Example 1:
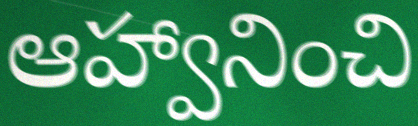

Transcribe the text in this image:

ఆహ్వానించి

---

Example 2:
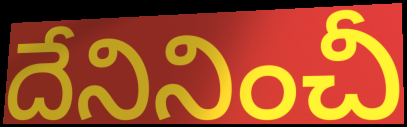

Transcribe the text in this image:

దేనినించీ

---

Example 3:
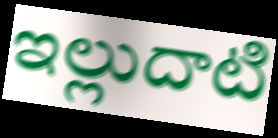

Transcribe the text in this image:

ఇల్లుదాటి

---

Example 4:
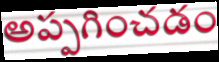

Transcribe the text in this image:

అప్పగించడం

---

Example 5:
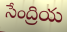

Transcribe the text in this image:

సేంద్రియ